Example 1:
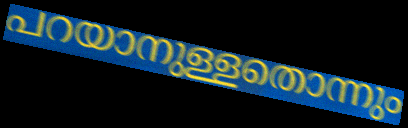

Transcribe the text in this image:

പറയാനുള്ളതൊന്നും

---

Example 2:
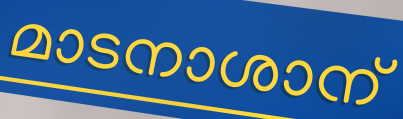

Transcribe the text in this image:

മാടനാശാന്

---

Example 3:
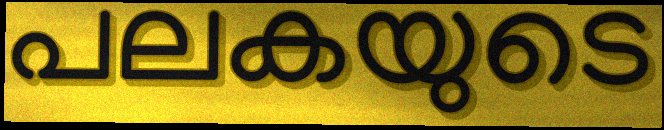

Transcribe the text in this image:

പലകയുടെ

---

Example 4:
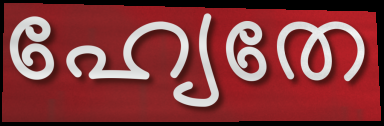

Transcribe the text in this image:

ഹ്യേതേ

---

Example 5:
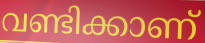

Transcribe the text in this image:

വണ്ടിക്കാണ്